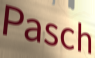
Pasch